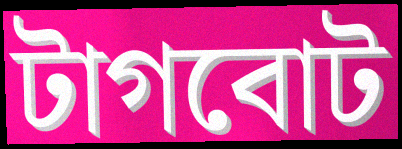
টাগবোট